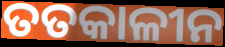
ତତକାଳୀନ